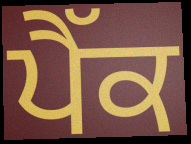
ਪੈੱਕ